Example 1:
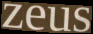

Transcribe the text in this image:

zeus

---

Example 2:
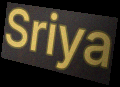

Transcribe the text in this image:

Sriya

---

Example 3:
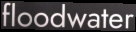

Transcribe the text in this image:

floodwater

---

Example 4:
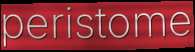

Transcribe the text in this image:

peristome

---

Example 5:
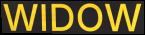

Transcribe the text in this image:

WIDOW